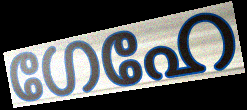
ഗേഹേ